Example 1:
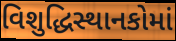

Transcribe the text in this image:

વિશુદ્ધિસ્થાનકોમાં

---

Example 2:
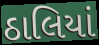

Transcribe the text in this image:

ઠાલિયાં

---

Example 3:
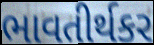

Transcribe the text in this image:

ભાવતીર્થકર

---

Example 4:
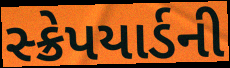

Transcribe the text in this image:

સ્ક્રેપયાર્ડની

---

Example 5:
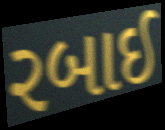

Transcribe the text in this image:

રબાઈ